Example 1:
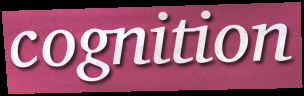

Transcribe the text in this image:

cognition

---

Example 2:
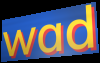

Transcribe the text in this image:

wad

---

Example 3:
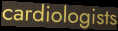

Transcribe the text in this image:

cardiologists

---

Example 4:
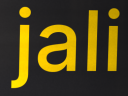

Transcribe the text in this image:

jali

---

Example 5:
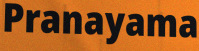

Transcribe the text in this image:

Pranayama